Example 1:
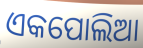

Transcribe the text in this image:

ଏକପୋଲିଆ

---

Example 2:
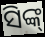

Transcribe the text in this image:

ସିଙ୍କ୍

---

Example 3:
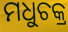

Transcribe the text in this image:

ମଧୁଚକ୍ର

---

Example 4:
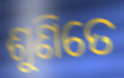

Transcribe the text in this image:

ଶୁଣିତେ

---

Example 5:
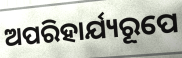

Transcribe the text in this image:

ଅପରିହାର୍ଯ୍ୟରୂପେ